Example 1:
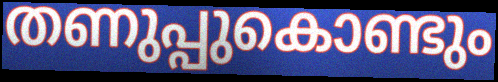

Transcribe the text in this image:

തണുപ്പുകൊണ്ടും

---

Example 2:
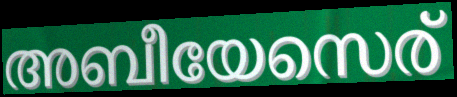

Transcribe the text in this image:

അബീയേസെര്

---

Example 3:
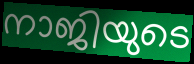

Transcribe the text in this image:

നാജിയുടെ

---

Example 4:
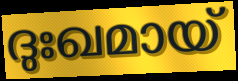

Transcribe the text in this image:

ദുഃഖമായ്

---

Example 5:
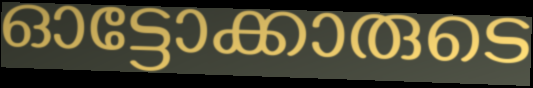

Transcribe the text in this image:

ഓട്ടോക്കാരുടെ